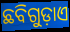
ଛବିଗୁଡ଼ାଏ